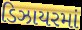
ડિઝાયરમાં